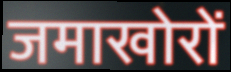
जमाखोरों